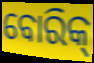
ବୋରିକ୍